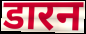
डारन